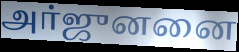
அர்ஜுனனை